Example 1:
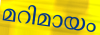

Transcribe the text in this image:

മറിമായം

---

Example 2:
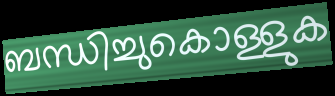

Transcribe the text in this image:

ബന്ധിച്ചുകൊള്ളുക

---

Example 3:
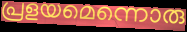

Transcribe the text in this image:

പ്രളയമെന്നൊരു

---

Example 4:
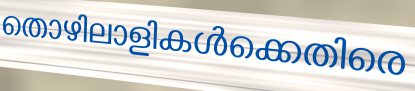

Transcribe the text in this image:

തൊഴിലാളികൾക്കെതിരെ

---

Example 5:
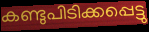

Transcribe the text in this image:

കണ്ടുപിടിക്കപ്പെട്ടു